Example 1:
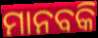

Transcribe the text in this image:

ମାନବକି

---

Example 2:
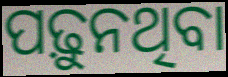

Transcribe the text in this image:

ପଢ଼ୁନଥିବା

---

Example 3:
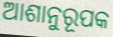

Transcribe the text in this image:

ଆଶାନୁରୂପକ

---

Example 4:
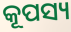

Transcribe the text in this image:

କୂପସ୍ୟ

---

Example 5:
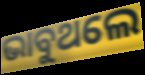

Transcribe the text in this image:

ଭାବୁଥଲେ